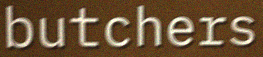
butchers